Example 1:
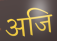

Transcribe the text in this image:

अजि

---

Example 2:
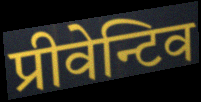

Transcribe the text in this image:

प्रीवेन्टिव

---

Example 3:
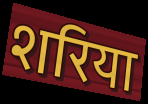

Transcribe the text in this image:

शरिया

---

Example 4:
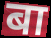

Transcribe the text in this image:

बा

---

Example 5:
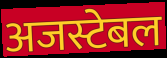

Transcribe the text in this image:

अजस्टेबल